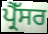
ਪ੍ਰੈੱਸਰ